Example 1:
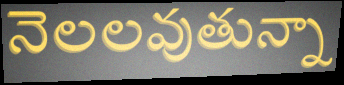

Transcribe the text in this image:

నెలలవుతున్నా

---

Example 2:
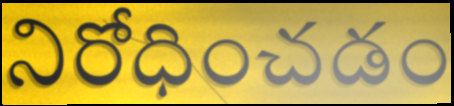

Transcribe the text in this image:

నిరోధించడం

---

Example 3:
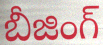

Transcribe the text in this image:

బీజింగ్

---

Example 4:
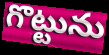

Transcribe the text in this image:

గొట్టును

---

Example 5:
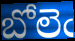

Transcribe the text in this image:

బోలెఁ